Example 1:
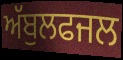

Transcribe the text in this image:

ਅੱਬੁਲਫਜਲ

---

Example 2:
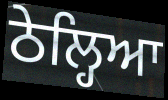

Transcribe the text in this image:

ਠੇਲ੍ਹਿਆ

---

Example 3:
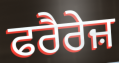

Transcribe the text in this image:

ਫਰੈਰੇਜ਼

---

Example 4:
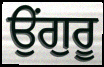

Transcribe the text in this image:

ਉਂਗੁਰੂ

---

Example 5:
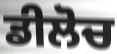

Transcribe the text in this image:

ਡੀਲੋਚ